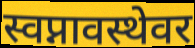
स्वप्नावस्थेवर